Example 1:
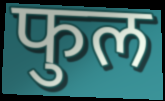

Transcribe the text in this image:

फुल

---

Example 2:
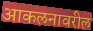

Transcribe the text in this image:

आकलनावरील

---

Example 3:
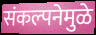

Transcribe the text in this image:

संकल्पनेमुळे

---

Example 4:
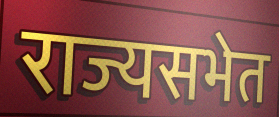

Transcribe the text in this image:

राज्यसभेत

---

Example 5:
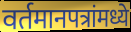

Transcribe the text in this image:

वर्तमानपत्रांमध्ये